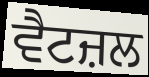
ਵੈਟਜ਼ਲ